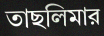
তাছলিমার